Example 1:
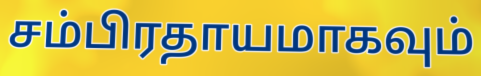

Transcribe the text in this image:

சம்பிரதாயமாகவும்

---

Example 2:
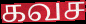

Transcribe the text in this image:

கவச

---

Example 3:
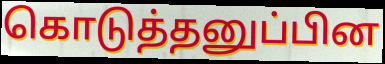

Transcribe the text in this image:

கொடுத்தனுப்பின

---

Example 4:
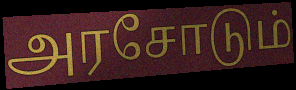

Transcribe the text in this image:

அரசோடும்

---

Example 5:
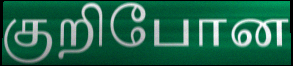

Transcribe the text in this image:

குறிபோன